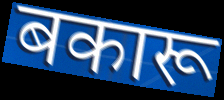
बकारू